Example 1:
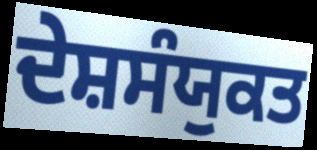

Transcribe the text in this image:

ਦੇਸ਼ਸੰਯੁਕਤ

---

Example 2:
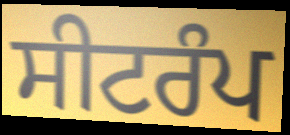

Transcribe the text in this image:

ਸੀਟਰੰਪ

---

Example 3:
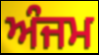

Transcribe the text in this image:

ਅੰਜਮ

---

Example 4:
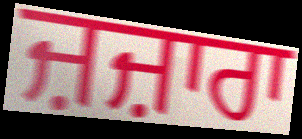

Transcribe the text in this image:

ਜ਼ਜ਼ਾਰਾ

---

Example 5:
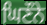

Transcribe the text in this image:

ਘਿਣੌਨੇ